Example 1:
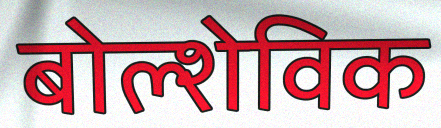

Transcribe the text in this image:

बोल्शेविक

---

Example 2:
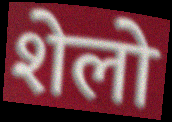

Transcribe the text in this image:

शेलो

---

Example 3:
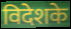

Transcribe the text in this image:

विदेशके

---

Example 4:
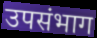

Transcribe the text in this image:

उपसंभाग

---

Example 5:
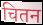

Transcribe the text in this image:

चितन